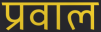
प्रवाल